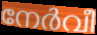
നേർവീ